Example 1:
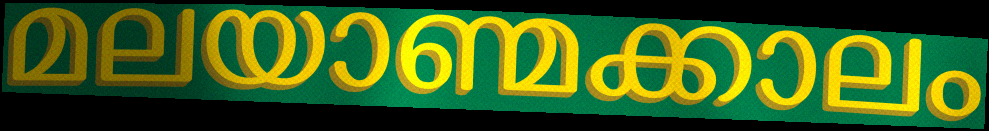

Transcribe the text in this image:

മലയാണ്മക്കാലം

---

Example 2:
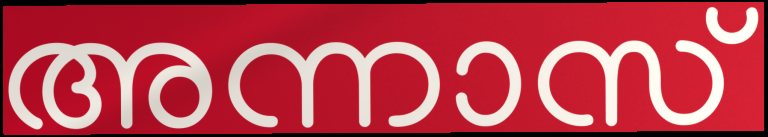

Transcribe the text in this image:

അന്നാസ്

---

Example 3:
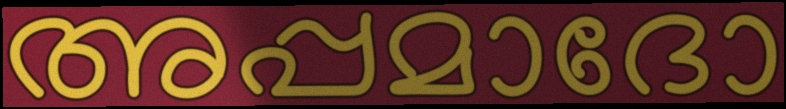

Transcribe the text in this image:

അപ്പമാദോ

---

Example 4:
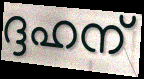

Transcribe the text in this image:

ദ്ദഹന്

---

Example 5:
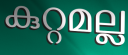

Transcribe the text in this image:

കുറ്റമല്ല